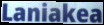
Laniakea